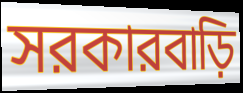
সরকারবাড়ি